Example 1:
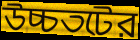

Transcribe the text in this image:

উচ্চতটের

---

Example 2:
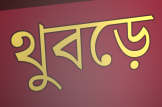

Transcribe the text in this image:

থুবড়ে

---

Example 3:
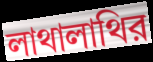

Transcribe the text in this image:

লাথালাথির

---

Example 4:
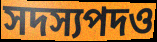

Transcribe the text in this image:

সদস্যপদও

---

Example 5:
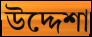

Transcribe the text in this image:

উদ্দেশা